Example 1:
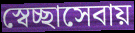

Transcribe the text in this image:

স্বেচ্ছাসেবায়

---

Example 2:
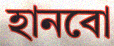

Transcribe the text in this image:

হানবো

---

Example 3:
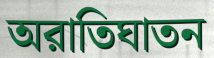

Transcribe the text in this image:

অরাতিঘাতন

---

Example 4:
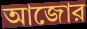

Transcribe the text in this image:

আজোর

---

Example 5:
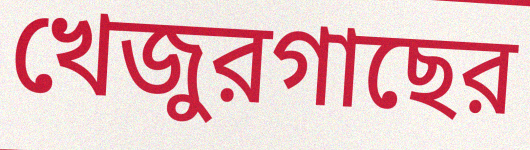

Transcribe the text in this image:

খেজুরগাছের